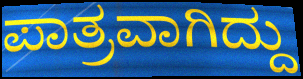
ಪಾತ್ರವಾಗಿದ್ದು